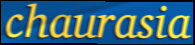
chaurasia